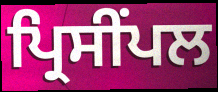
ਪ੍ਰਿਸੀਂਪਲ